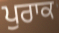
ਪੁਰਾਕ